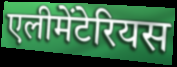
एलीमेंटेरियस